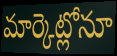
మార్కెట్లోనూ